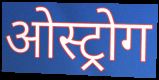
ओस्ट्रोग